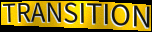
TRANSITION